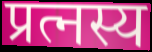
प्रत्नस्य